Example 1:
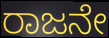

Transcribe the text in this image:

ರಾಜನೇ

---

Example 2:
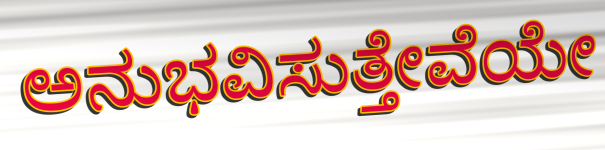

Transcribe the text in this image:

ಅನುಭವಿಸುತ್ತೇವೆಯೇ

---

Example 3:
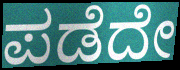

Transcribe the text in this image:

ಪಡೆದೇ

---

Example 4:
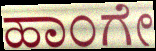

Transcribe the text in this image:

ಹಾಂಗೇ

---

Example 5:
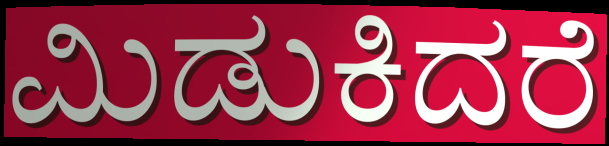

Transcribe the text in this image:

ಮಿಡುಕಿದರೆ